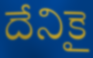
దేనికై